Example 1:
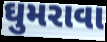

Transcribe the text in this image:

ઘુમરાવા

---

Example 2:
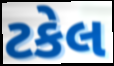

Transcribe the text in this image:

ટકેલ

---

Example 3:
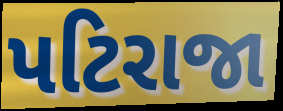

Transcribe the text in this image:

પટિરાજા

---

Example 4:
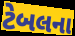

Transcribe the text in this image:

ટેબલના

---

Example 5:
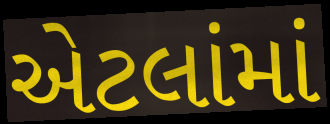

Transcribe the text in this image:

એટલાંમાં